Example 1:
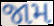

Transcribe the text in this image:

જામ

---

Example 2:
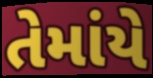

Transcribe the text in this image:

તેમાંયે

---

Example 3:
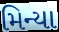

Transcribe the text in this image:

મિન્યા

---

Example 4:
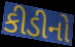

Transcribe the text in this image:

કીડીનો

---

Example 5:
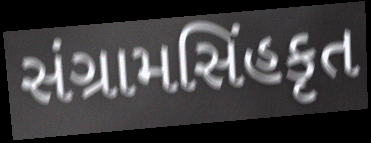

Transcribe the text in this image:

સંગ્રામસિંહકૃત